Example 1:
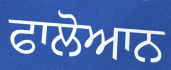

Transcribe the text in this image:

ਫਾਲੋਆਨ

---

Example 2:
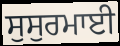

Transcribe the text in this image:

ਸੁਸੁਰਮਾਈ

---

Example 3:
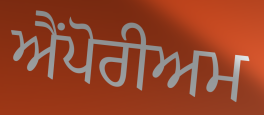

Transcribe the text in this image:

ਐਂਪੋਰੀਅਮ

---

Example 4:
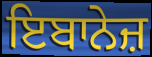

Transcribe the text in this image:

ਇਬਾਨੇਜ਼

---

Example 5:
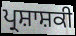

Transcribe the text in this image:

ਪ੍ਰਸ਼ਾਸ਼ਕੀ